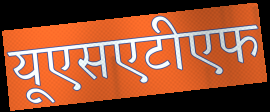
यूएसएटीएफ